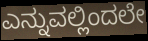
ಎನ್ನುವಲ್ಲಿಂದಲೇ